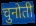
चुनोती